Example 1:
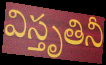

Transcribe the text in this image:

విస్తృతినీ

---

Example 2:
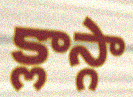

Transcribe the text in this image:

క్లాస్గా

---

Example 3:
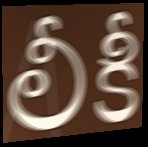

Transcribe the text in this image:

లీకీ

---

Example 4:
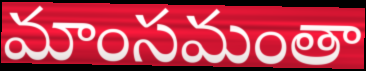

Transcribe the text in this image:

మాంసమంతా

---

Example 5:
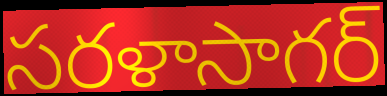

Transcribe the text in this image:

సరళాసాగర్